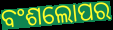
ବଂଶଲୋପର